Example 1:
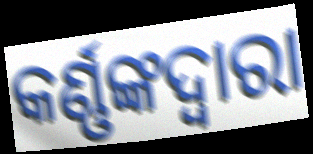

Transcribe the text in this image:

କର୍ଣ୍ଣଙ୍କଦ୍ୱାରା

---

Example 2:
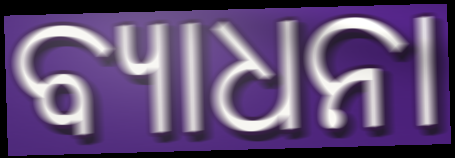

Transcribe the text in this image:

ବ୍ୟାଧନା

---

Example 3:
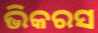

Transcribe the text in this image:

ଭିକରସ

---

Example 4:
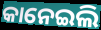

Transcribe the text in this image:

କାନେଇଲି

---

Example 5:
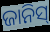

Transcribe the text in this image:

ଜାନିସ୍